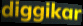
diggikar